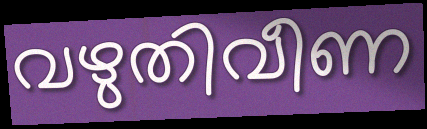
വഴുതിവീണ